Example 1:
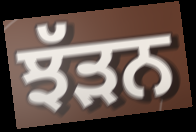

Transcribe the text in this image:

ਝੱੜਨ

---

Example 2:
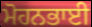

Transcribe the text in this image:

ਮੋਹਨਭਾਈ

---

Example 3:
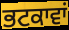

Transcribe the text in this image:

ਭਟਕਾਵਾਂ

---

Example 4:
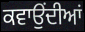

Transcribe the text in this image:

ਕਵਾਉਂਦੀਆਂ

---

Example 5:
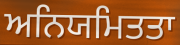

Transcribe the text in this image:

ਅਨਿਯਮਿਤਤਾ